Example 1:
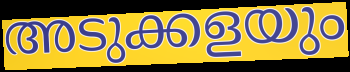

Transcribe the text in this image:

അടുക്കളയും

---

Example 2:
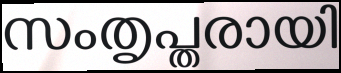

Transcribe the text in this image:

സംതൃപ്തരായി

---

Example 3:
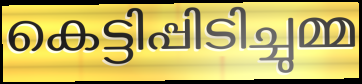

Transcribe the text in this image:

കെട്ടിപ്പിടിച്ചുമ്മ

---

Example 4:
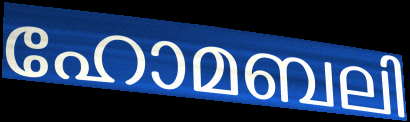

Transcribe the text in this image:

ഹോമബലി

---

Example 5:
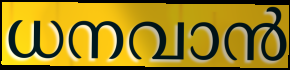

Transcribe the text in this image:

ധനവാൻ